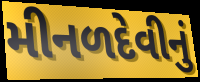
મીનળદેવીનું